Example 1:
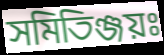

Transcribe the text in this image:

সমিতিঞ্জয়ঃ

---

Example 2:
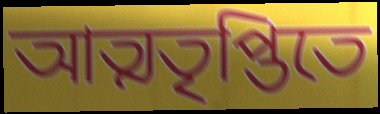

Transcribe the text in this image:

আত্মতৃপ্তিতে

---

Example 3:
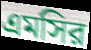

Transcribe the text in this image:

এমসির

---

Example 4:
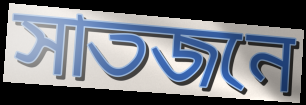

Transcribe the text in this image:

সাতজনে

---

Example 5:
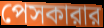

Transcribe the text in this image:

পেসকারার